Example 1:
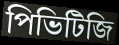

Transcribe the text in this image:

পিভিটিজি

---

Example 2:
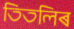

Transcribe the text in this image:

তিতলিৰ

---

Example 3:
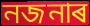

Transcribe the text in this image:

নজনাৰ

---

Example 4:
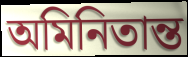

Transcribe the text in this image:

অমিনিতান্ত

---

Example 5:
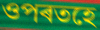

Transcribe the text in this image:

ওপৰতহে